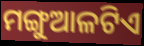
ମଙ୍ଗୁଆଳଟିଏ